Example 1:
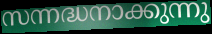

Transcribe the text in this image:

സന്നദ്ധനാക്കുന്നു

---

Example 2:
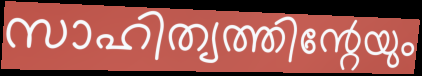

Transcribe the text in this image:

സാഹിത്യത്തിന്റേയും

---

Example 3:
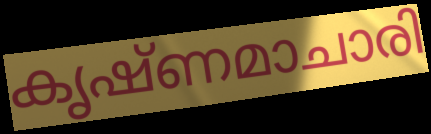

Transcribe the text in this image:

കൃഷ്ണമാചാരി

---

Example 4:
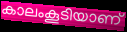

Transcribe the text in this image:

കാലംകൂടിയാണ്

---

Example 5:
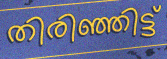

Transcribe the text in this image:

തിരിഞ്ഞിട്ട്